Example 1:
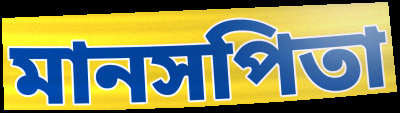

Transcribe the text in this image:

মানসপিতা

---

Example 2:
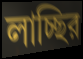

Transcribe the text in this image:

লাচ্ছির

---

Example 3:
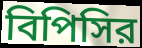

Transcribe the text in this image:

বিপিসির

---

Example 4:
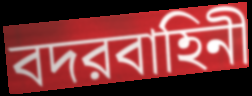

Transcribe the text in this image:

বদরবাহিনী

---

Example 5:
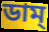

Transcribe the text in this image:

ডাম্